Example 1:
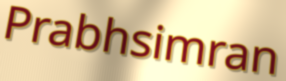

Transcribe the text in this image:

Prabhsimran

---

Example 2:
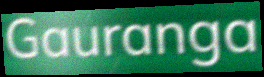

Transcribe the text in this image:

Gauranga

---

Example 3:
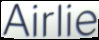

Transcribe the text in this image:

Airlie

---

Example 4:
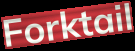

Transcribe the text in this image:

Forktail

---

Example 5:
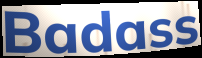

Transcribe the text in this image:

Badass